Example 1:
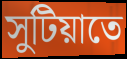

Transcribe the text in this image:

সুটিয়াতে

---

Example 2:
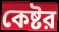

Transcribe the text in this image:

কেষ্টর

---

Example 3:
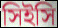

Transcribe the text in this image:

সিইসি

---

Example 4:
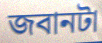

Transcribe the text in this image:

জবানটা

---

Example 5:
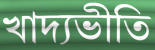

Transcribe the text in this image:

খাদ্যভীতি